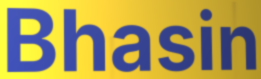
Bhasin